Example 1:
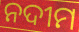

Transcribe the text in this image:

ନଦୀମ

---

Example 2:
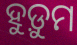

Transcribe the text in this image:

ହୁଡ଼ୁମ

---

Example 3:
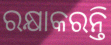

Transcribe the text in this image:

ରକ୍ଷାକରନ୍ତି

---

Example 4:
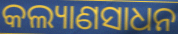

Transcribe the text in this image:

କଲ୍ୟାଣସାଧନ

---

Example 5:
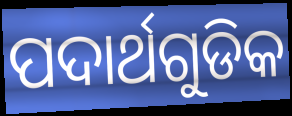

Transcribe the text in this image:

ପଦାର୍ଥଗୁଡିକ